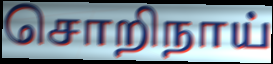
சொறிநாய்